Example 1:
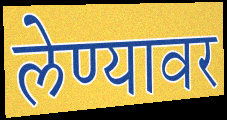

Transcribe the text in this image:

लेण्यावर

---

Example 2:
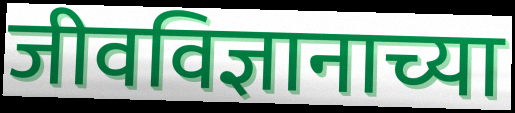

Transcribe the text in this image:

जीवविज्ञानाच्या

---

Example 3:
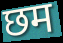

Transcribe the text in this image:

छम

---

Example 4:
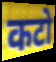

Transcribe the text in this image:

कटो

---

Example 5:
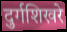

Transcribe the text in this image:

दुर्गशिखरे